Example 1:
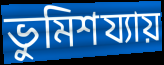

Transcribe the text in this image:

ভুমিশয্যায়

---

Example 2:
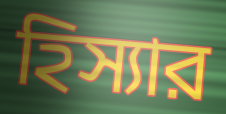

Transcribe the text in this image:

হিস্যার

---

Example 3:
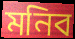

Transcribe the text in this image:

মনিব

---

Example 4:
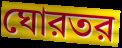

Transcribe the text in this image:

ঘোরতর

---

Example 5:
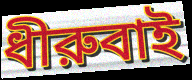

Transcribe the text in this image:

ধীরুবাই